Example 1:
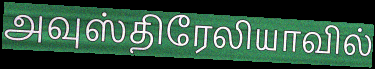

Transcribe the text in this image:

அவுஸ்திரேலியாவில்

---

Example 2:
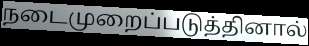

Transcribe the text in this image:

நடைமுறைப்படுத்தினால்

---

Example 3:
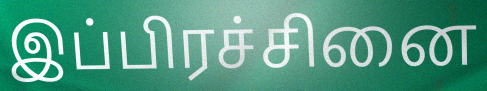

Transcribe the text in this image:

இப்பிரச்சினை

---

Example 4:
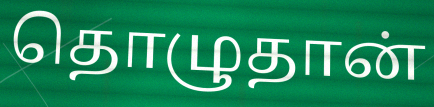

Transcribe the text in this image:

தொழுதான்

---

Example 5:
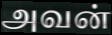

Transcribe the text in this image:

அவன்